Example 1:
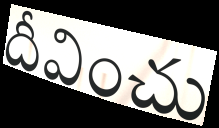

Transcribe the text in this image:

దీవించు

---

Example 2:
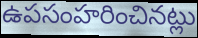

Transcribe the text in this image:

ఉపసంహరించినట్లు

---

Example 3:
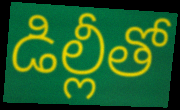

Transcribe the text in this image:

డిల్లీతో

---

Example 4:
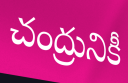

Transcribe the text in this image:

చంద్రునికీ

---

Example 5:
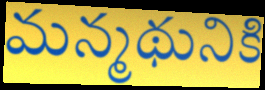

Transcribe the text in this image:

మన్మథునికి